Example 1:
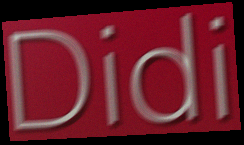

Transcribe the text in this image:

Didi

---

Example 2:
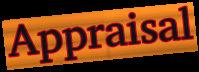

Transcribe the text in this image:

Appraisal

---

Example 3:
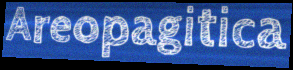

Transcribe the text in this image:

Areopagitica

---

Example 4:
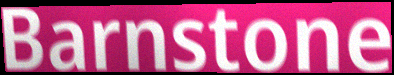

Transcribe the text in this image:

Barnstone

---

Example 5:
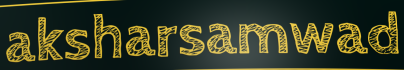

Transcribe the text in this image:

aksharsamwad